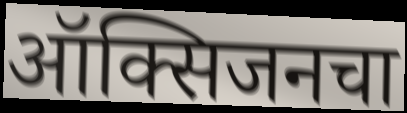
ऑक्सिजनचा